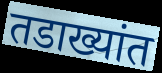
तडाख्यांत